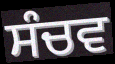
ਸੰਚਵ